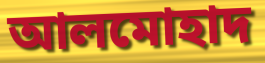
আলমোহাদ